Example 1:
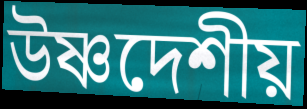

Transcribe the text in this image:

উষ্ণদেশীয়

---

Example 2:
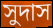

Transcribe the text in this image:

সুদাস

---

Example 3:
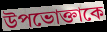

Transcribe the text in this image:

উপভোক্তাকে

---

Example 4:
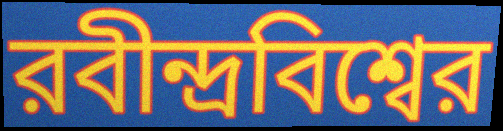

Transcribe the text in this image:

রবীন্দ্রবিশ্বের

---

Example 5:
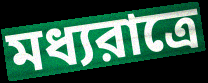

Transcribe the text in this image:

মধ্যরাত্রে